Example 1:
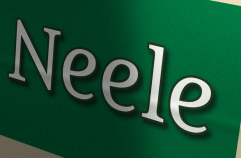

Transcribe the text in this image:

Neele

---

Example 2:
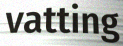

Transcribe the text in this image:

vatting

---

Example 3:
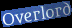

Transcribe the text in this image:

Overlord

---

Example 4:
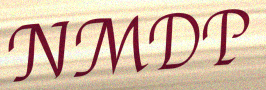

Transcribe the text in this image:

NMDP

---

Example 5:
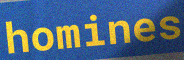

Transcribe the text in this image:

homines